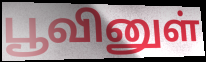
பூவினுள்